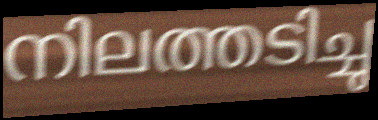
നിലത്തടിച്ചു